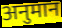
अनुमान